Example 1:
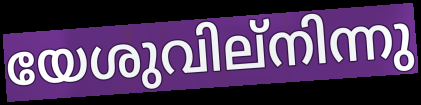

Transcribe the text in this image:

യേശുവില്നിന്നു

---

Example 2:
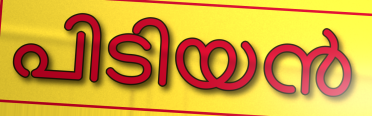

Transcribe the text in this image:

പിടിയൻ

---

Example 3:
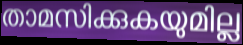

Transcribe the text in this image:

താമസിക്കുകയുമില്ല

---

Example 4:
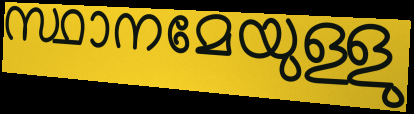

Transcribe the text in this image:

സ്ഥാനമേയുള്ളു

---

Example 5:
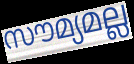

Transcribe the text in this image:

സൗമ്യമല്ല